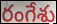
రంగేశు